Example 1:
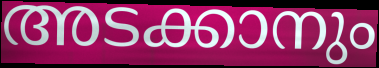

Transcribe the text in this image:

അടക്കാനും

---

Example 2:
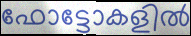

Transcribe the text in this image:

ഫോട്ടോകളിൽ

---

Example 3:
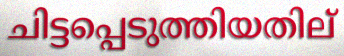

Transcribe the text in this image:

ചിട്ടപ്പെടുത്തിയതില്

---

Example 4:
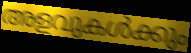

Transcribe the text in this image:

അളവുകൾക്കും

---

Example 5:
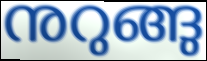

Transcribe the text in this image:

നുറുങ്ങു